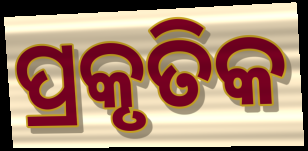
ପ୍ରକୃତିକ